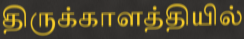
திருக்காளத்தியில்